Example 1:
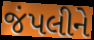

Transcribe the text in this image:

જંપલીને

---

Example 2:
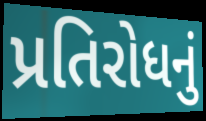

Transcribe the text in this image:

પ્રતિરોધનું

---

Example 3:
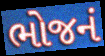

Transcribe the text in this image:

ભોજનં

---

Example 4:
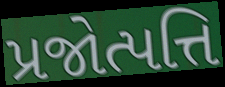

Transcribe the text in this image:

પ્રજોત્પત્તિ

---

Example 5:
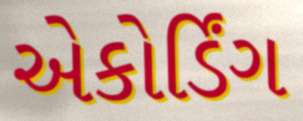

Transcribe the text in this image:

એકોર્ડિંગ